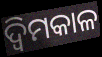
ଦ୍ବିମକାଳ